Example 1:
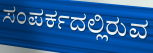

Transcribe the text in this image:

ಸಂಪರ್ಕದಲ್ಲಿರುವ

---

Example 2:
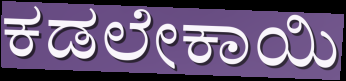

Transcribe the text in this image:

ಕಡಲೇಕಾಯಿ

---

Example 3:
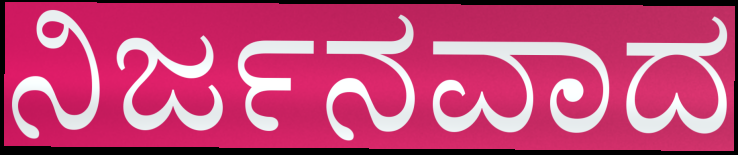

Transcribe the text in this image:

ನಿರ್ಜನವಾದ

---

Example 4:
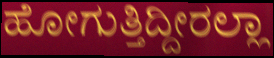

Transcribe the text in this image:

ಹೋಗುತ್ತಿದ್ದೀರಲ್ಲಾ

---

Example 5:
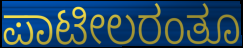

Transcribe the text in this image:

ಪಾಟೀಲರಂತೂ